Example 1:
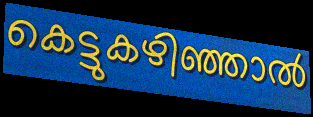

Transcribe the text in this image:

കെട്ടുകഴിഞ്ഞാൽ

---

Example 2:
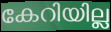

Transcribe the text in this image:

കേറിയില്ല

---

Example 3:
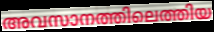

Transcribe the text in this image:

അവസാനത്തിലെത്തിയ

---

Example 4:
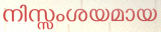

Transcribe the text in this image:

നിസ്സംശയമായ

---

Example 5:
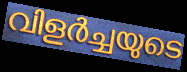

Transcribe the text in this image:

വിളർച്ചയുടെ